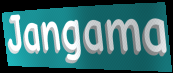
Jangama